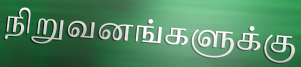
நிறுவனங்களுக்கு